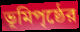
ভূমিপৃষ্ঠের